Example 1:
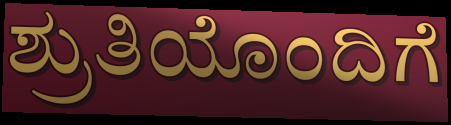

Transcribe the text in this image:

ಶ್ರುತಿಯೊಂದಿಗೆ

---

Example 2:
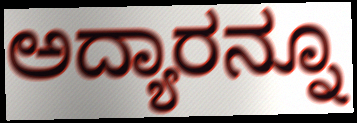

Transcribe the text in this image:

ಅದ್ಯಾರನ್ನೂ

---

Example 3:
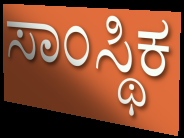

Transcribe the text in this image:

ಸಾಂಸ್ಥಿಕ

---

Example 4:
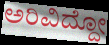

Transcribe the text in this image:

ಅರಿವಿದ್ದೋ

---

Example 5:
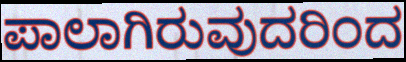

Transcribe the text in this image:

ಪಾಲಾಗಿರುವುದರಿಂದ